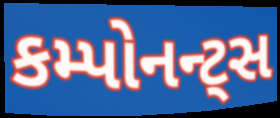
કમ્પોનન્ટ્સ